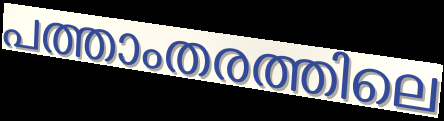
പത്താംതരത്തിലെ